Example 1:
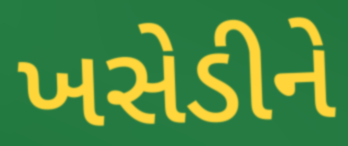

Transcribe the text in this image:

ખસેડીને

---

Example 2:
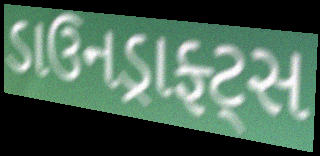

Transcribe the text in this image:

ડાઉનડ્રાફ્ટ્સ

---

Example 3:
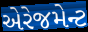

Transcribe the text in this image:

એરેજમેન્ટ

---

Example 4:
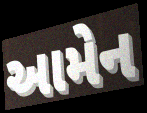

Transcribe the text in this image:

આમેન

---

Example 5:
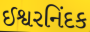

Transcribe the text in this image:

ઈશ્વરનિંદક